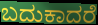
ಬದುಕಾದರೆ